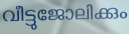
വീട്ടുജോലിക്കും